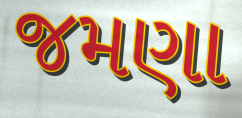
જમણા